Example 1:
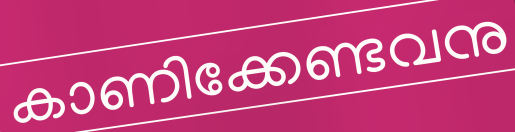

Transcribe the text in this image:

കാണിക്കേണ്ടവനു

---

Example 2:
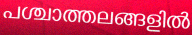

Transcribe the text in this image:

പശ്ചാത്തലങ്ങളിൽ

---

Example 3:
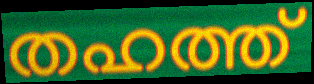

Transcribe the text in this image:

തഹത്ത്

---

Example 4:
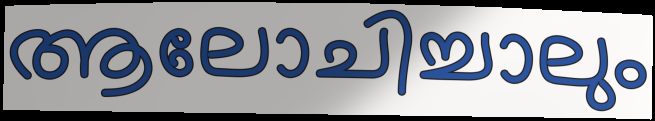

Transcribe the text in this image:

ആലോചിച്ചാലും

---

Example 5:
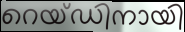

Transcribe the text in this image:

റെയ്ഡിനായി